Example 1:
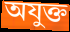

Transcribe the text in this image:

অযুক্ত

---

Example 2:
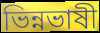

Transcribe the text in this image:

ভিন্নভাষী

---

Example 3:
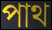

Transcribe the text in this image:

পাথ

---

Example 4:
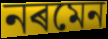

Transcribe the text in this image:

নৰমেন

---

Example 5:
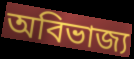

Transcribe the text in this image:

অবিভাজ্য